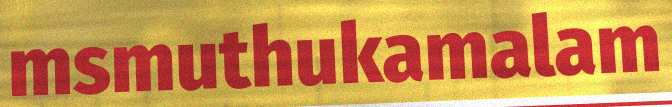
msmuthukamalam